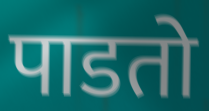
पाडतो